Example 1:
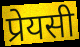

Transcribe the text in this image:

प्रेयसी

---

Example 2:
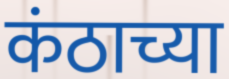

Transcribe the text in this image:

कंठाच्या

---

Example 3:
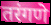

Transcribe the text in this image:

तरंगणे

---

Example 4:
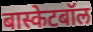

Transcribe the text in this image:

बास्केटबॉल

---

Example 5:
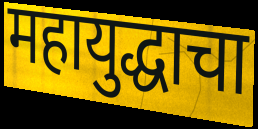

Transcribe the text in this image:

महायुद्धाचा